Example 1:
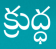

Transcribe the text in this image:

క్రుద్ధ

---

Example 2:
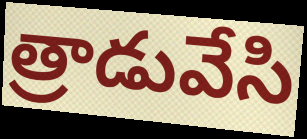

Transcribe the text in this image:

త్రాడువేసి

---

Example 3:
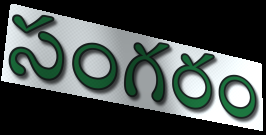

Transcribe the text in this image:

సంగరం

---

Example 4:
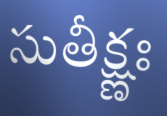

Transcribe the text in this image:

సుతీక్ష్ణః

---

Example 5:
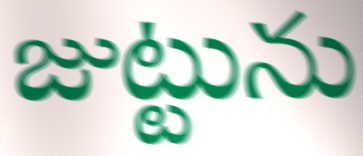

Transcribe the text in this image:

జుట్టును